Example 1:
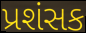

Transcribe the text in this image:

પ્રશંસક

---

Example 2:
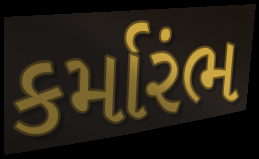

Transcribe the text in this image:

કર્મારંભ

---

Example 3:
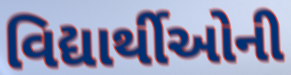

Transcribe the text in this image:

વિદ્યાર્થીઓની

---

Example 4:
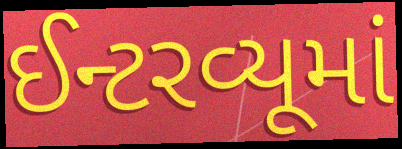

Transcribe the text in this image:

ઈન્ટરવ્યૂમાં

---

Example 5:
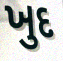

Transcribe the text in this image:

ખુદ